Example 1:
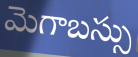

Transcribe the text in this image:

మెగాబస్సు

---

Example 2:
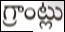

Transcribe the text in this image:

గ్రాంట్లు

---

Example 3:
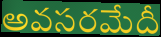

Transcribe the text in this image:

అవసరమేదీ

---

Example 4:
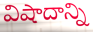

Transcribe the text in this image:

విషాదాన్ని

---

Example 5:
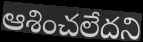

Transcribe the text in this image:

ఆశించలేదని